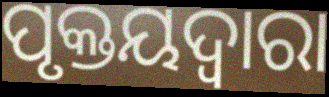
ପୃକ୍ତୟଦ୍ଵାରା